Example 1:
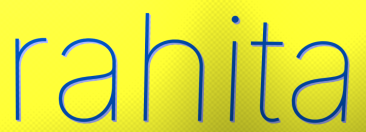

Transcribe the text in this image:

rahita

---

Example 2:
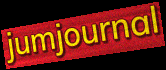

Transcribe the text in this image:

jumjournal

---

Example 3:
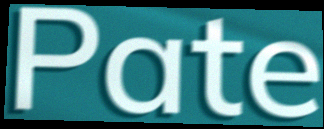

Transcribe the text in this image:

Pate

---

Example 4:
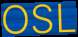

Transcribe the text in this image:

OSL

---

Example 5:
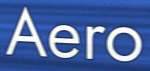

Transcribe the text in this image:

Aero